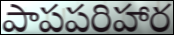
పాపపరిహార